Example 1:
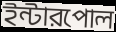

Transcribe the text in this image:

ইন্টারপোল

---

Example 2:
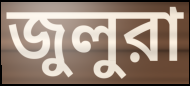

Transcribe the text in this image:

জুলুরা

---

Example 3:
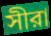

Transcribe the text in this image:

সীরা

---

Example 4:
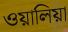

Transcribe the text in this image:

ওয়ালিয়া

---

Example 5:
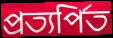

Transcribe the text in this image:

প্রত্যর্পিত